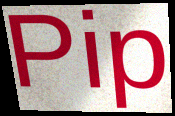
Pip